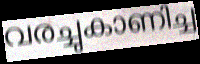
വരച്ചുകാണിച്ച